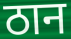
ठान